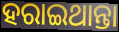
ହରାଇଥାନ୍ତା